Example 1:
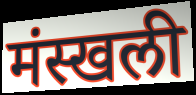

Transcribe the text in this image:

मंस्खली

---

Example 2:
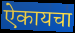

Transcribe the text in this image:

ऐकायचा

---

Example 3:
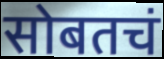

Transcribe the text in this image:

सोबतचं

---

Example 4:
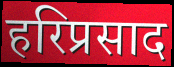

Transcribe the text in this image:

हरिप्रसाद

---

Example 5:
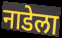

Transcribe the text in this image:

नाडेला